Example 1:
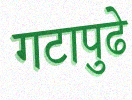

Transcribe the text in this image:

गटापुढे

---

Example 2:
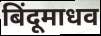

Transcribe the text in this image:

बिंदूमाधव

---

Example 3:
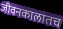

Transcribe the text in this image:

जीवनकालातच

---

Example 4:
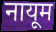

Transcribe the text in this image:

नायूम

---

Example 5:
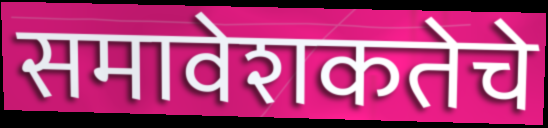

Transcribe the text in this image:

समावेशकतेचे